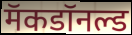
मॅकडॉनल्ड